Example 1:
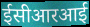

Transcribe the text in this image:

ईसीआरआई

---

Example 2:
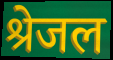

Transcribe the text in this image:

श्रेजल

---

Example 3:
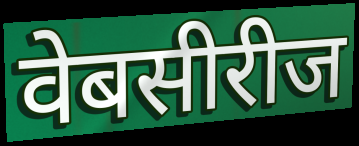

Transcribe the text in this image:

वेबसीरीज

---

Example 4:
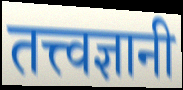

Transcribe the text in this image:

तत्त्वज्ञानी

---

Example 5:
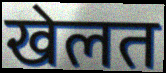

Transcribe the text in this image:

खेलत